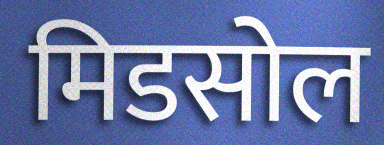
मिडसोल